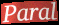
Paral